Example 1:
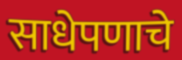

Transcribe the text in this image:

साधेपणाचे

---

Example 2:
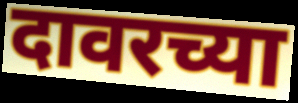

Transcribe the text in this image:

दावरच्या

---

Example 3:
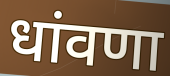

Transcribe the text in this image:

धांवणा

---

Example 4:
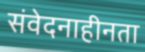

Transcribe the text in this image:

संवेदनाहीनता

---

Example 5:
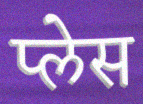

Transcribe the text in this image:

प्लेस